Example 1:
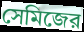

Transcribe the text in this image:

সেমিজের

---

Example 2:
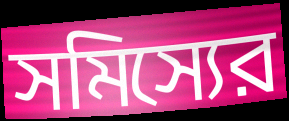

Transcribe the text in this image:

সমিস্যের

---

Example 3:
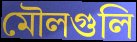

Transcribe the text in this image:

মৌলগুলি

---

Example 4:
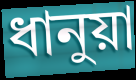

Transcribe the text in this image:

ধানুয়া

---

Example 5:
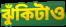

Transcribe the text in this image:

ঝুঁকিটাও